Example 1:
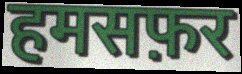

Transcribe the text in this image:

हमसफ़र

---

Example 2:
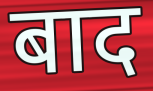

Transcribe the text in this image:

बाद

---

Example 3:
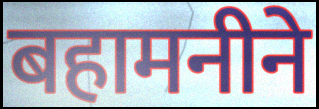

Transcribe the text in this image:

बहामनीने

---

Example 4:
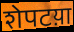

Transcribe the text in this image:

शेपटय़ा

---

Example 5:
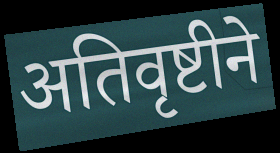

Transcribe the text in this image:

अतिवृष्टीने